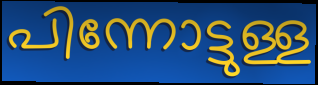
പിന്നോട്ടുള്ള